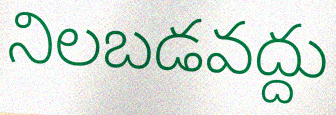
నిలబడవద్దు